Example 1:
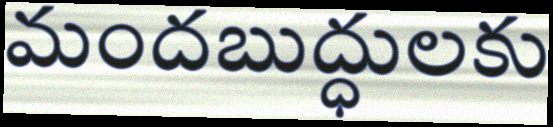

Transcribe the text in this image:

మందబుద్ధులకు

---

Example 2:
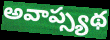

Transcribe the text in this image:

అవాప్స్యథ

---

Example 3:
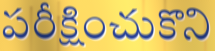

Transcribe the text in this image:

పరీక్షించుకొని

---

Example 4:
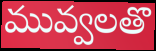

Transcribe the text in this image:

మువ్వలతొ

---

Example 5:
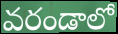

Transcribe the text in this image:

వరండాలో